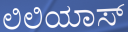
ಲಿಲಿಯಾಸ್